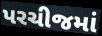
પરચીજમાં